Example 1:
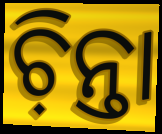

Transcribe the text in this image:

ଚ଼ିନ୍ତା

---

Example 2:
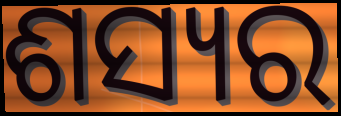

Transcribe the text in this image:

ଶସ୍ଯର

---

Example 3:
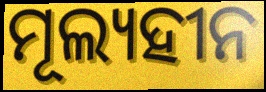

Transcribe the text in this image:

ମୂଲ୍ଯହୀନ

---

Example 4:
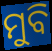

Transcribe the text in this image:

ମୁବି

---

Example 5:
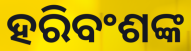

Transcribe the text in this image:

ହରିବଂଶଙ୍କ